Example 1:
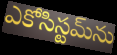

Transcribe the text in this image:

ఎకోసిస్టమ్‌ను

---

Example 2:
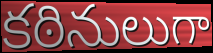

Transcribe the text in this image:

కఠినులుగా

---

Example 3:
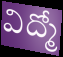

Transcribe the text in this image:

విద్మో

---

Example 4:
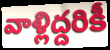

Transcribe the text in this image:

వాళ్లిద్దరికీ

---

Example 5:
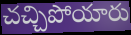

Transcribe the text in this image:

చచ్చిపోయారు